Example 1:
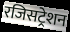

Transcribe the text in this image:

रजिसट्रेशन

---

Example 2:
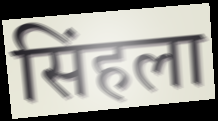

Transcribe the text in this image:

सिंहला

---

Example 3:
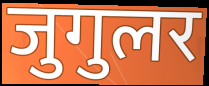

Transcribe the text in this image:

जुगुलर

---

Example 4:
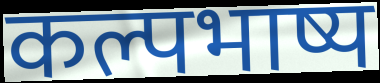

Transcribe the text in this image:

कल्पभाष्य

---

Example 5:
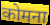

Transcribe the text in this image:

कोमना